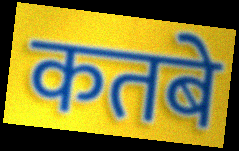
कतबे